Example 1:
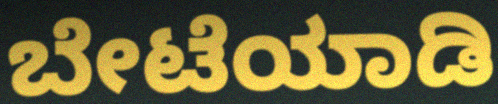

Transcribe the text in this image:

ಬೇಟೆಯಾಡಿ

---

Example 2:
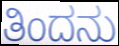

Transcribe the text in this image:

ತಿಂದನು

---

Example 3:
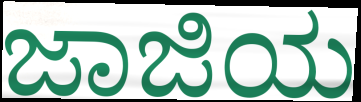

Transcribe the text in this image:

ಜಾಜಿಯ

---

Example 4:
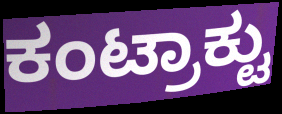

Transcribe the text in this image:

ಕಂಟ್ರಾಕ್ಟು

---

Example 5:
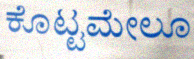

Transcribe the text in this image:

ಕೊಟ್ಟಮೇಲೂ